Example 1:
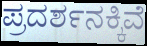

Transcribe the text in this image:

ಪ್ರದರ್ಶನಕ್ಕಿವೆ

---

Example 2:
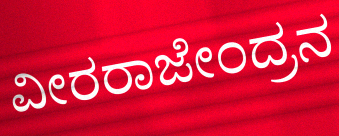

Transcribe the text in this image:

ವೀರರಾಜೇಂದ್ರನ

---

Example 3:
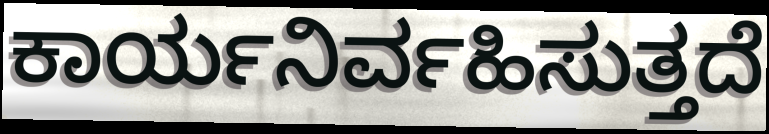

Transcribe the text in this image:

ಕಾರ್ಯನಿರ್ವಹಿಸುತ್ತದೆ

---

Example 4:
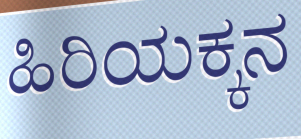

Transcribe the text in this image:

ಹಿರಿಯಕ್ಕನ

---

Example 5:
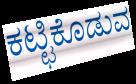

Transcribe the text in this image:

ಕಟ್ಟಿಕೊಡುವ